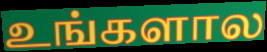
உங்களால